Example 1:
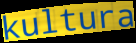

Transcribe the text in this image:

kultura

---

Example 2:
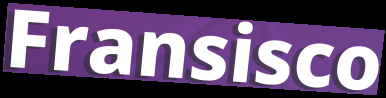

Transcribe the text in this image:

Fransisco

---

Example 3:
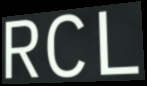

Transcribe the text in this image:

RCL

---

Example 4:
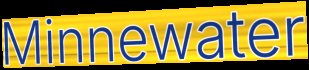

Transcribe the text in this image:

Minnewater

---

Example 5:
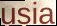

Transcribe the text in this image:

usia